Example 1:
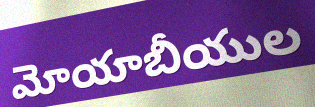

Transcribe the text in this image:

మోయాబీయుల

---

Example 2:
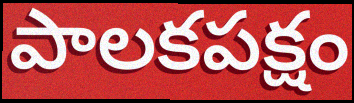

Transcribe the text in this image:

పాలకపక్షం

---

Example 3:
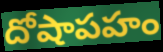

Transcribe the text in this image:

దోషాపహం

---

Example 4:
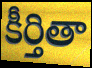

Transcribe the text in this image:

కీర్తితా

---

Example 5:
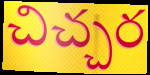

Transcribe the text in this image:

చిచ్చర